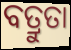
ବତ୍ରୁତା